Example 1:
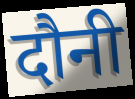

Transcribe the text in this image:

दौनी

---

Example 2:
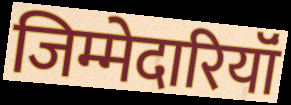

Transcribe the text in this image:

जिम्मेदारियॉं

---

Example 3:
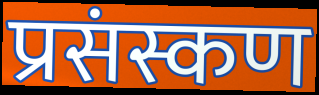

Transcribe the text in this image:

प्रसंस्कण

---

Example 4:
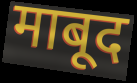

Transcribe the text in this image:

माबूद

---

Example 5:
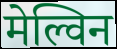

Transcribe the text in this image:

मेल्विन